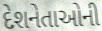
દેશનેતાઓની